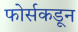
फोर्सकडून